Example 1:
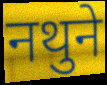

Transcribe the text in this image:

नथुने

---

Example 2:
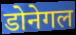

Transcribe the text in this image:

डोनेगल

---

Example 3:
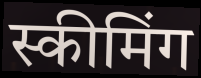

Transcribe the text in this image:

स्कीमिंग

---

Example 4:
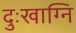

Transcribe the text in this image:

दुःखाग्नि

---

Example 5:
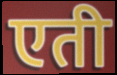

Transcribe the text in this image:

एती